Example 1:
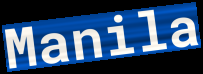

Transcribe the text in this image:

Manila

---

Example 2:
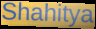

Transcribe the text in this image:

Shahitya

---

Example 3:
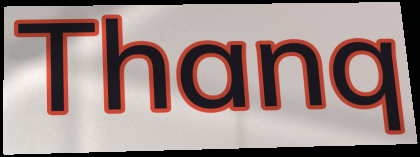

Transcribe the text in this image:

Thanq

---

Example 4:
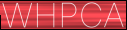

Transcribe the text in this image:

WHPCA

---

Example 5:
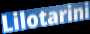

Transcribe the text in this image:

Lilotarini